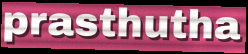
prasthutha